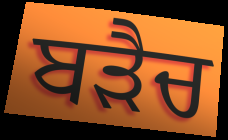
ਬੜੈਚ